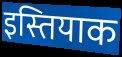
इस्तियाक